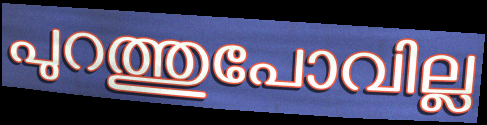
പുറത്തുപോവില്ല